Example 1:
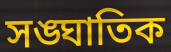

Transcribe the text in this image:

সঙ্ঘাতিক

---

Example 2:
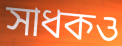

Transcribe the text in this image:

সাধকও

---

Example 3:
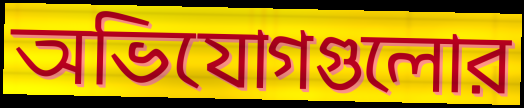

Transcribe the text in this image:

অভিযোগগুলোর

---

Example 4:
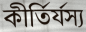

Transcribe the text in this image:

কীর্তির্যস্য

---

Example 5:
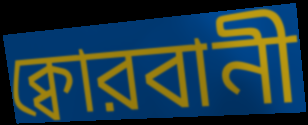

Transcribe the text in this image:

ক্বোরবানী